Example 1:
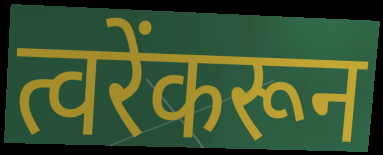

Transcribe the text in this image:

त्वरेंकरून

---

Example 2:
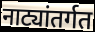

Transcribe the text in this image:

नाट्यांतर्गत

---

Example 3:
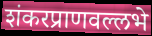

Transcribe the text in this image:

शंकरप्राणवल्लभे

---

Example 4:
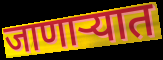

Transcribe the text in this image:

जाणाऱ्यात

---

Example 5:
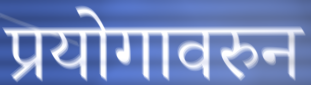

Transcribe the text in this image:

प्रयोगावरुन